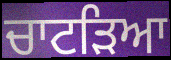
ਚਾਟੜਿਆ